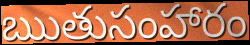
ఋతుసంహారం